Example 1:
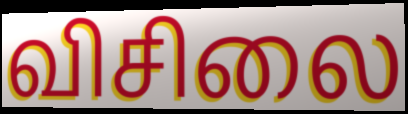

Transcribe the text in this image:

விசிலை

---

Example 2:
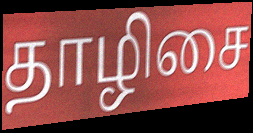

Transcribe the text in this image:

தாழிசை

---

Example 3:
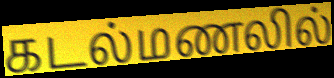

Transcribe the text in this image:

கடல்மணலில்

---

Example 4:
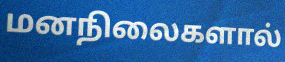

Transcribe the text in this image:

மனநிலைகளால்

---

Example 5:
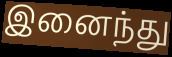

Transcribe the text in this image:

இனைந்து